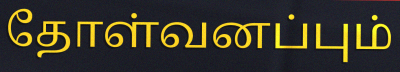
தோள்வனப்பும்